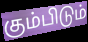
கும்பிடும்